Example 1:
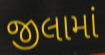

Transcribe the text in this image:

જીલામાં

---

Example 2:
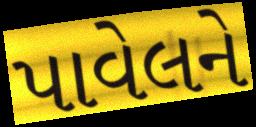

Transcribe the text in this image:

પાવેલને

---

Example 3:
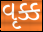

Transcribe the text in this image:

વૃક્ક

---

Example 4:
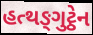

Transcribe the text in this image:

હત્થઙ્ગુટ્ઠેન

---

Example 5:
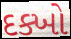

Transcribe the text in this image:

દક્ખો